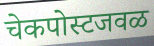
चेकपोस्टजवळ